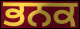
ਭਨਕ